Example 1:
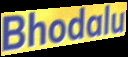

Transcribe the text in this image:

Bhodalu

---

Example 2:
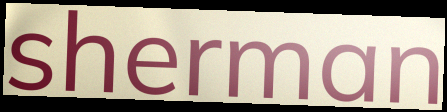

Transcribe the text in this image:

sherman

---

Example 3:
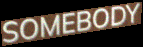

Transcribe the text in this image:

SOMEBODY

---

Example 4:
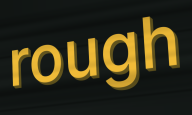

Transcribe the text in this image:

rough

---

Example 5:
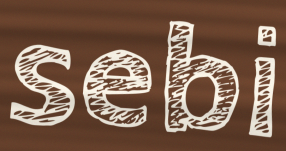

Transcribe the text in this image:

sebi